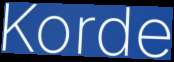
Korde